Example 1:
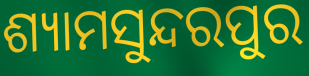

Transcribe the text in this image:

ଶ୍ୟାମସୁନ୍ଦରପୁର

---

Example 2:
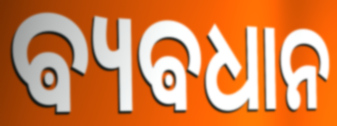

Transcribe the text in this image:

ଵ୍ୟଵଧାନ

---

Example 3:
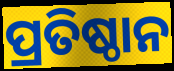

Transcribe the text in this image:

ପ୍ରତିଷ୍ଠାନ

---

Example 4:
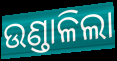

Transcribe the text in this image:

ଉଣ୍ଡାଳିଲା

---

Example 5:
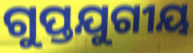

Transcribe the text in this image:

ଗୁପ୍ତଯୁଗୀୟ